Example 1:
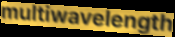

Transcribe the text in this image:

multiwavelength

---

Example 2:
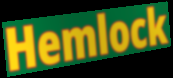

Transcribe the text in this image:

Hemlock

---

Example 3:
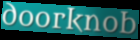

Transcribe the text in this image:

doorknob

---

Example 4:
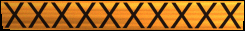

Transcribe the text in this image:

XXXXXXXXXX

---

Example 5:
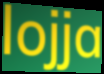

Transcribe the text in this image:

lojja